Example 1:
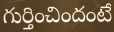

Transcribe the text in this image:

గుర్తించిందంటే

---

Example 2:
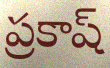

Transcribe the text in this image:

ప్రకాష్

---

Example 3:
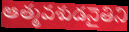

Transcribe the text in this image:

ఆత్మవశుడనైతిని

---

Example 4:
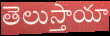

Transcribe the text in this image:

తెలుస్తాయా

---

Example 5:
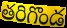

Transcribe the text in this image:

తరిగొండ